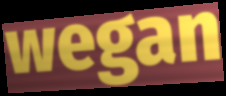
wegan